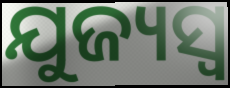
ଯୁଜ୍ୟସ୍ୱ